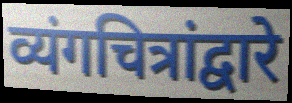
व्यंगचित्रांद्वारे